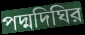
পদ্মদিঘির